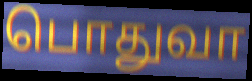
பொதுவா